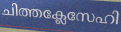
ചിത്തക്ലേസേഹി